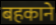
बहकाने